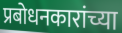
प्रबोधनकारांच्या